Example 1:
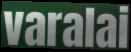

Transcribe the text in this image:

varalai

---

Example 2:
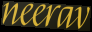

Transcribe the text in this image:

neerav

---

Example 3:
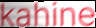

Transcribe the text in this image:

kahine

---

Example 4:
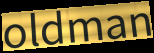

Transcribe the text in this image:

oldman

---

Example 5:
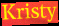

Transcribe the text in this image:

Kristy